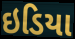
ઇડિયા